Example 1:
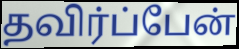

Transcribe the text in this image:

தவிர்ப்பேன்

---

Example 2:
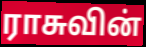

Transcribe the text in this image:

ராசுவின்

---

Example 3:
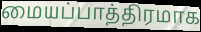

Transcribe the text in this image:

மையப்பாத்திரமாக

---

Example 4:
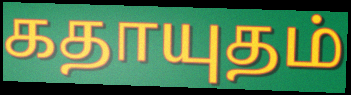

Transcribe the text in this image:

கதாயுதம்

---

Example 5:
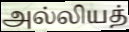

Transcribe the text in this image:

அல்லியத்